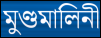
মুণ্ডমালিনী